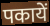
पकायें